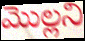
మొల్లని